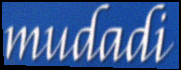
mudadi